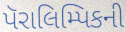
પૅરાલિમ્પિકની